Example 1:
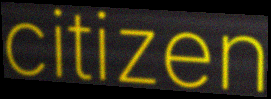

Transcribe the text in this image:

citizen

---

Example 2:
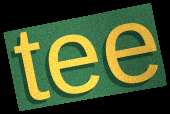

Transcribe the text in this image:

tee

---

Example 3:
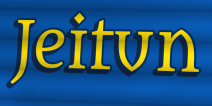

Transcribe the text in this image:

Jeitun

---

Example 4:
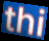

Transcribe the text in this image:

thi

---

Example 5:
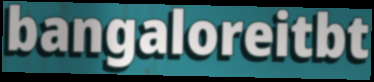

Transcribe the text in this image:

bangaloreitbt